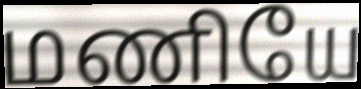
மணியே